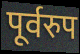
पूर्वरुप